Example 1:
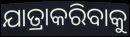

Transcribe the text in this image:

ଯାତ୍ରାକରିବାକୁ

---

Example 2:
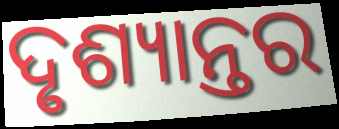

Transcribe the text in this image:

ଦୃଶ୍ୟାନ୍ତର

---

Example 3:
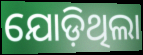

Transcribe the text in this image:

ଯୋଡ଼ିଥିଲା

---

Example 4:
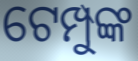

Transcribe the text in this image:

ଟେମ୍ପୁଙ୍କ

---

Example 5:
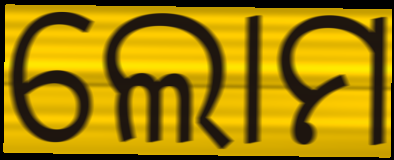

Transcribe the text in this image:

ଲୋମ